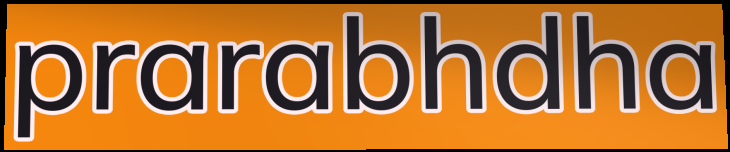
prarabhdha